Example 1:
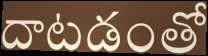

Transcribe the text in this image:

దాటడంతో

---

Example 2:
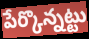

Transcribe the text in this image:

పేర్కొన్నట్టు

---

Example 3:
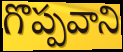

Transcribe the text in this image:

గొప్పవాని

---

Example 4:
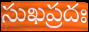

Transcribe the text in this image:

సుఖప్రదః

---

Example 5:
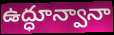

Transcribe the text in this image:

ఉద్ధూన్వానా